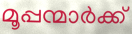
മൂപ്പന്മാർക്ക്